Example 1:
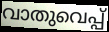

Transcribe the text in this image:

വാതുവെപ്പ്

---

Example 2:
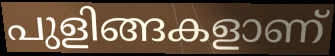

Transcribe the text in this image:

പുളിങ്ങകളാണ്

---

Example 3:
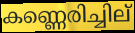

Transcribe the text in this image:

കണ്ണെരിച്ചില്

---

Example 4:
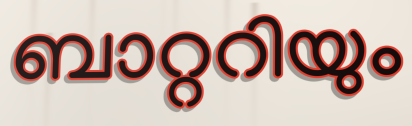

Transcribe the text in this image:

ബാറ്ററിയും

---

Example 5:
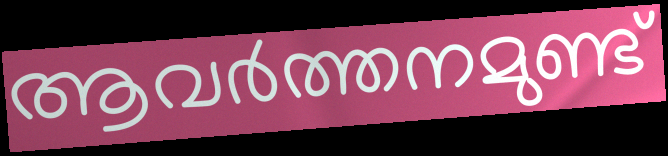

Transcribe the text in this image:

ആവർത്തനമുണ്ട്